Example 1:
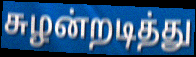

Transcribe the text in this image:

சுழன்றடித்து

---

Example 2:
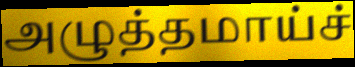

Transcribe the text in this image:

அழுத்தமாய்ச்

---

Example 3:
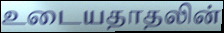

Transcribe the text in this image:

உடையதாதலின்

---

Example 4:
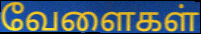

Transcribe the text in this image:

வேளைகள்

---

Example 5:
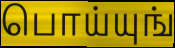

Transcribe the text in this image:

பொய்யுங்